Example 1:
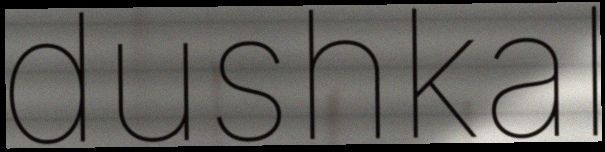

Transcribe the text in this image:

dushkal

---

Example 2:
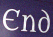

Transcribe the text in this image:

End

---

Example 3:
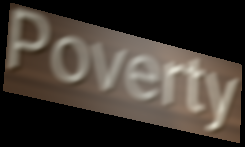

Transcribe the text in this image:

Poverty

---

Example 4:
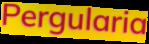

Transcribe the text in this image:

Pergularia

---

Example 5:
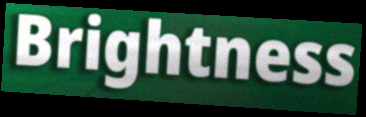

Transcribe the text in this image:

Brightness